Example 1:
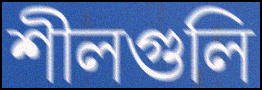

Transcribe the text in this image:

শীলগুলি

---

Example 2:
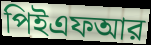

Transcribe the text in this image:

পিইএফআর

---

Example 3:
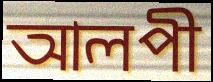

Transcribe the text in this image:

আলপী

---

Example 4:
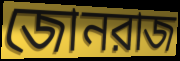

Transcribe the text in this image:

জোনরাজ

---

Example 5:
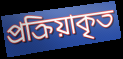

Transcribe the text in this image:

প্রক্রিয়াকৃত